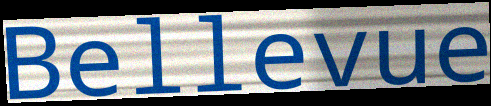
Bellevue